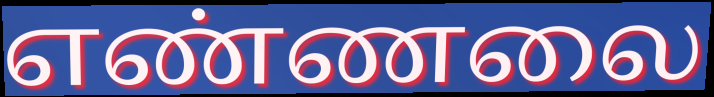
எண்ணலை